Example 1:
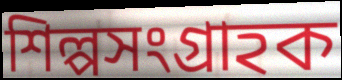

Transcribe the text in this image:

শিল্পসংগ্রাহক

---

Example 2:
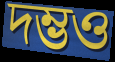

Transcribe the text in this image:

দম্ভও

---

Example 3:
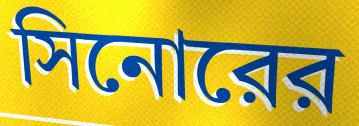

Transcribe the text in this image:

সিনোরের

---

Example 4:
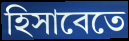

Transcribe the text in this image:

হিসাবেতে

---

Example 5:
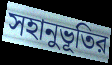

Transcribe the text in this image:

সহানুভূতির